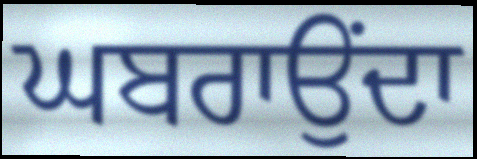
ਘਬਰਾਉਂਦਾ